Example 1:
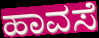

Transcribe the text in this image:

ಹಾವಸೆ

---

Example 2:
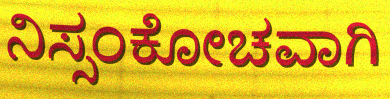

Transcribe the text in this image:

ನಿಸ್ಸಂಕೋಚವಾಗಿ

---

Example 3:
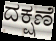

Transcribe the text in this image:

ದಕ್ಷಣೆ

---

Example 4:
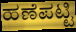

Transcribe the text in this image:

ಹಣೆಪಟ್ಟಿ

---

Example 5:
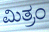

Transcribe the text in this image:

ಮಿತ್ರಂ